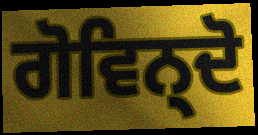
ਗੋਵਿਨ੍ਦੋ